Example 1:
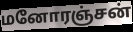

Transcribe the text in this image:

மனோரஞ்சன்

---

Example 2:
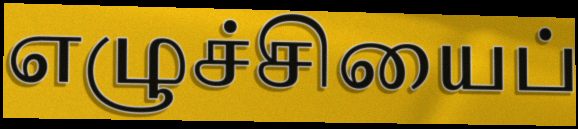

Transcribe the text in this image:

எழுச்சியைப்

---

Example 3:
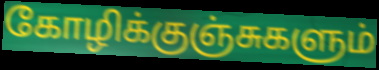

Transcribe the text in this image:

கோழிக்குஞ்சுகளும்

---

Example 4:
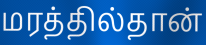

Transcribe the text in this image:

மரத்தில்தான்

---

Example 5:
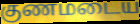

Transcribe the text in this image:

குணமடைய